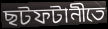
ছটফটানীতে